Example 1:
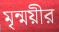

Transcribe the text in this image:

মৃন্ময়ীর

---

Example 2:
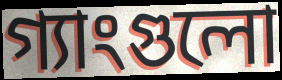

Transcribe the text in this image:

গ্যাংগুলো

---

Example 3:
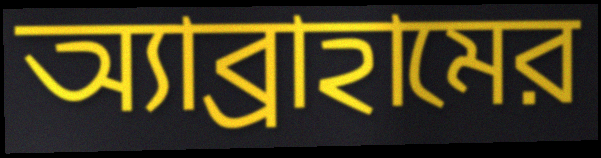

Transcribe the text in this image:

অ্যাব্রাহামের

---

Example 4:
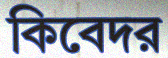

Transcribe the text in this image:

কিবেদর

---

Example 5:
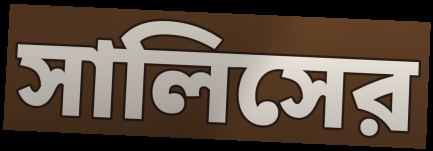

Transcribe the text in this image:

সালিসের